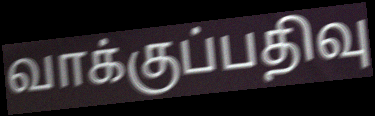
வாக்குப்பதிவு